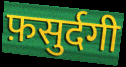
फ़सुर्दगी